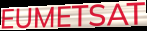
EUMETSAT